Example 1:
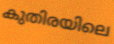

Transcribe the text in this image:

കുതിരയിലെ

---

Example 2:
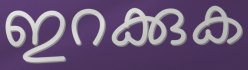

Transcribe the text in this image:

ഇറക്കുക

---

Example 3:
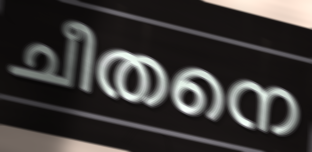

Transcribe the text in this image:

ചീതനെ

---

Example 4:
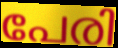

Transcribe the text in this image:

പേരി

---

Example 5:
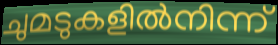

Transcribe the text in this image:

ചുമടുകളിൽനിന്ന്